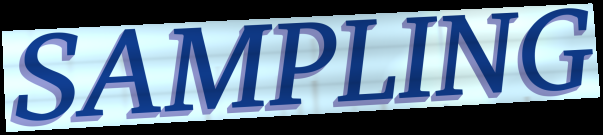
SAMPLING